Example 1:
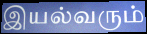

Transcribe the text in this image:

இயல்வரும்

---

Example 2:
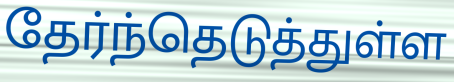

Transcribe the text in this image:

தேர்ந்தெடுத்துள்ள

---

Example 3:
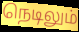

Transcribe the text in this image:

நெடிலும்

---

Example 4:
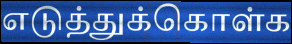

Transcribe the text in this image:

எடுத்துக்கொள்க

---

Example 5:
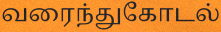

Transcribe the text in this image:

வரைந்துகோடல்